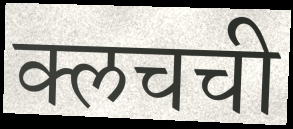
क्लचची